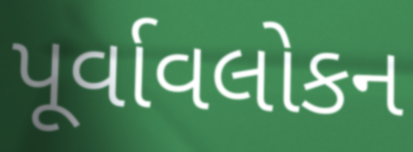
પૂર્વાવલોકન